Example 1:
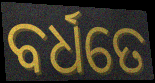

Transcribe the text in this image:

ବର୍ଧତେ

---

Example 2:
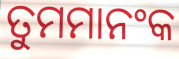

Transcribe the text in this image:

ତୁମମାନଂକ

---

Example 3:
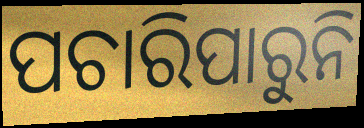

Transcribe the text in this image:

ପଚାରିପାରୁନି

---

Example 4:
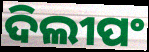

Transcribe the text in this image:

ଦିଲୀପଂ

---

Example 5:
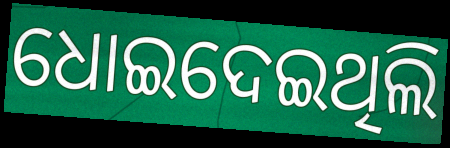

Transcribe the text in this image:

ଧୋଇଦେଇଥିଲି